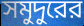
সমুদুরের